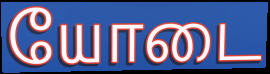
யோடை